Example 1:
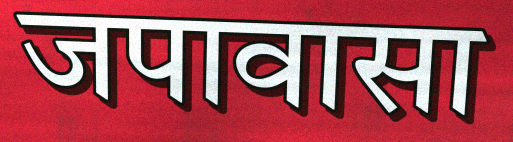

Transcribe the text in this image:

जपावासा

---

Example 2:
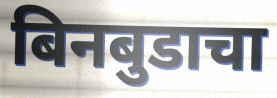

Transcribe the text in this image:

बिनबुडाचा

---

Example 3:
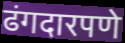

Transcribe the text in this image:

ढंगदारपणे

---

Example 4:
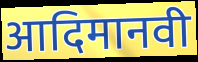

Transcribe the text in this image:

आदिमानवी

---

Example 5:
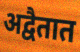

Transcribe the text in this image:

अद्वैतात